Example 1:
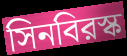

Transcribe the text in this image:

সিনবিরস্ক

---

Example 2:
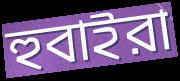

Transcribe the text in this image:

হুবাইরা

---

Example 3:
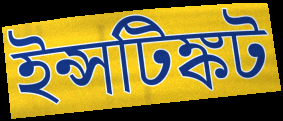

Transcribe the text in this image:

ইন্সটিঙ্কট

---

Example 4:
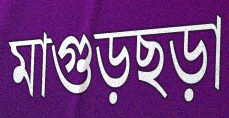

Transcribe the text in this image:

মাগুড়ছড়া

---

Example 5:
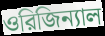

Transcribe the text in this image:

ওরিজিন্যাল